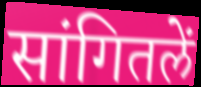
सांगितलें